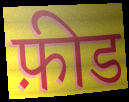
फ़ीड